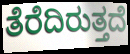
ತೆರೆದಿರುತ್ತದೆ